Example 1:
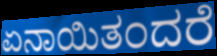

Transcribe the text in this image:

ಏನಾಯಿತಂದರೆ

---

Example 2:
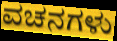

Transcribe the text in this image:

ವಚನಗಳು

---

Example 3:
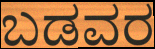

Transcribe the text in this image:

ಬಡವರ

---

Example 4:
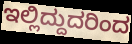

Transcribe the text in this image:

ಇಲ್ಲಿದ್ದುದರಿಂದ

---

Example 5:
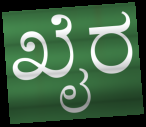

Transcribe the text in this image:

ಖೈರ